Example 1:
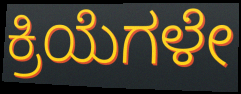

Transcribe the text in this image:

ಕ್ರಿಯೆಗಳೇ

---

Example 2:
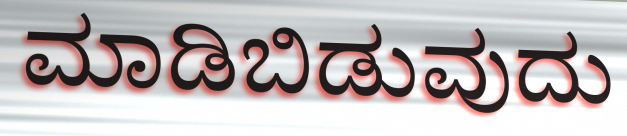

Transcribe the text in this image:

ಮಾಡಿಬಿಡುವುದು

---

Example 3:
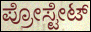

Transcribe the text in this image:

ಪ್ರೋಸ್ಟೇಟ್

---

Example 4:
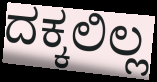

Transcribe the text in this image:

ದಕ್ಕಲಿಲ್ಲ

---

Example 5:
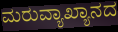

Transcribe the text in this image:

ಮರುವ್ಯಾಖ್ಯಾನದ